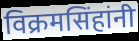
विक्रमसिंहांनी